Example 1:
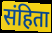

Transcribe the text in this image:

संहिता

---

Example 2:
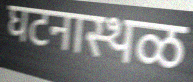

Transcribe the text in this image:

घटनास्थळ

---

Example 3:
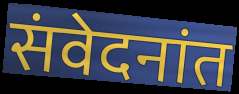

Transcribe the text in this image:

संवेदनांत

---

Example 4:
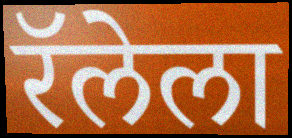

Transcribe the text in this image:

रॅलेला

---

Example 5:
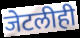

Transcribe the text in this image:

जेटलीही